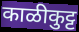
काळीकुट्ट